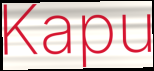
Kapu